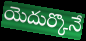
యెదుర్కొనే